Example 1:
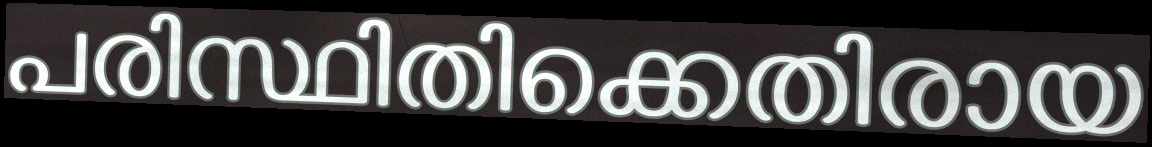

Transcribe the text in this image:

പരിസ്ഥിതിക്കെതിരായ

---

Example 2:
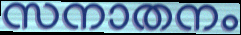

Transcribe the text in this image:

സനാതനം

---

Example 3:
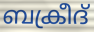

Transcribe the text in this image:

ബക്രീദ്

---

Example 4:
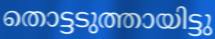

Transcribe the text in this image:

തൊട്ടടുത്തായിട്ടു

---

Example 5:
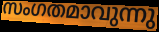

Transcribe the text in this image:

സംഗതമാവുന്നു